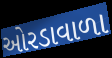
ઓરડાવાળા